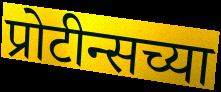
प्रोटीन्सच्या